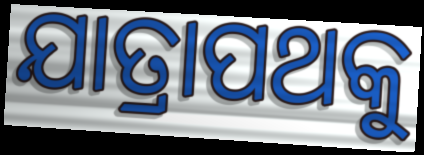
ଯାତ୍ରାପଥକୁ